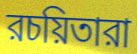
রচয়িতারা